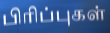
பிரிப்புகள்